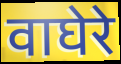
वाघेरे